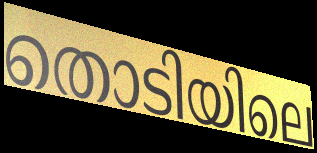
തൊടിയിലെ